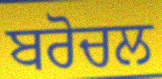
ਬਰੋਚਲ